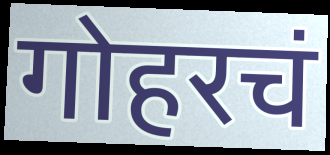
गोहरचं